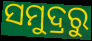
ସମୁଦ୍ରରୁ